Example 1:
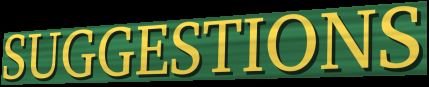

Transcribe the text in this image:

SUGGESTIONS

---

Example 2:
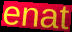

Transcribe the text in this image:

enat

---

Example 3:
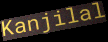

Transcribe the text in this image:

Kanjilal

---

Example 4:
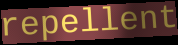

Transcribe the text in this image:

repellent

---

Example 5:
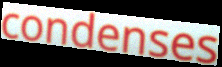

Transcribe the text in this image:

condenses